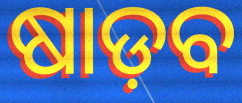
ଷାଡ଼ବ